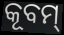
କୂବମ୍